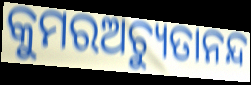
କୁମରଅଚ୍ୟୁତାନନ୍ଦ